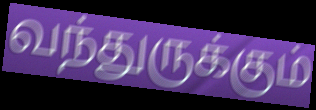
வந்துருக்கும்